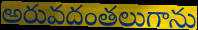
అరువదంతలుగాను